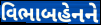
વિભાબહેનને